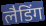
लैडिंग